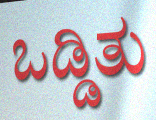
ಒಡ್ಡಿತು